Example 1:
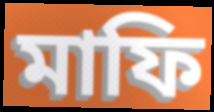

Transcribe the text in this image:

মাফি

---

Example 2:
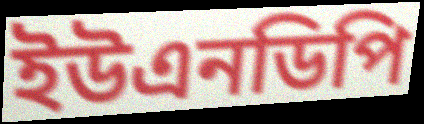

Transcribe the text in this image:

ইউএনডিপি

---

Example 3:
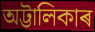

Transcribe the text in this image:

অট্টালিকাৰ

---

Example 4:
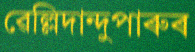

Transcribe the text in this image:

ৱেল্লিদান্দুপাৰুৰ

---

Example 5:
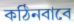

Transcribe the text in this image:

কঠিনবাবে